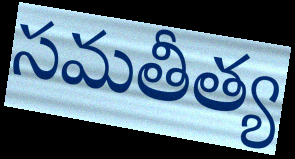
సమతీత్య